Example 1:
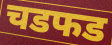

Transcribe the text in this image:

चडफड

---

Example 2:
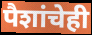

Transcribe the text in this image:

पैशांचेही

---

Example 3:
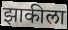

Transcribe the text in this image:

झाकीला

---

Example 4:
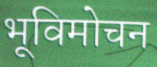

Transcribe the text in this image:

भूविमोचन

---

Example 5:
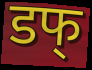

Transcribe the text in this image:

डफ्